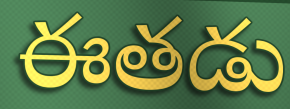
ఈతడు